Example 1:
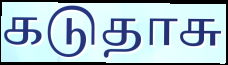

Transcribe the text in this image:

கடுதாசு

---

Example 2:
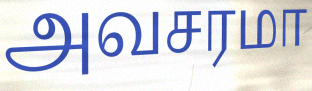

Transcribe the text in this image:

அவசரமா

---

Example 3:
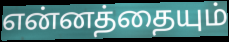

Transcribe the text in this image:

என்னத்தையும்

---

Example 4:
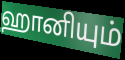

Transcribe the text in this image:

ஹானியும்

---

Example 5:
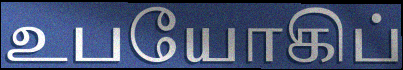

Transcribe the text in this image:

உபயோகிப்